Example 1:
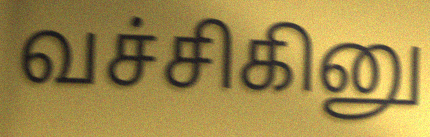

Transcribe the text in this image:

வச்சிகினு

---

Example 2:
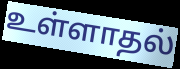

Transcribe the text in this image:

உள்ளாதல்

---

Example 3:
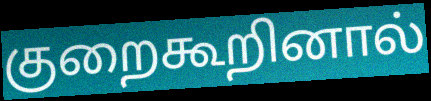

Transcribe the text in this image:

குறைகூறினால்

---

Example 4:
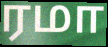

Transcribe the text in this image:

ரமா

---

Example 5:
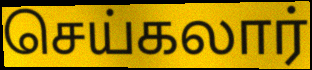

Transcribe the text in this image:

செய்கலார்